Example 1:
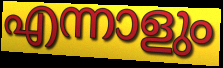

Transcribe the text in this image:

എന്നാളും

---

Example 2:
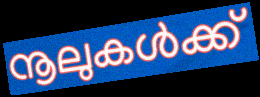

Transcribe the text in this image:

നൂലുകൾക്ക്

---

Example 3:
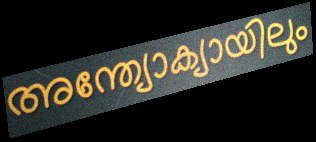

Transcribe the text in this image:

അന്ത്യോക്യായിലും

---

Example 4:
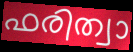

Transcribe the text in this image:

ഫരിത്വാ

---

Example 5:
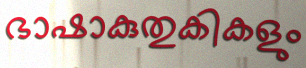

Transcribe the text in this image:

ഭാഷാകുതുകികളും